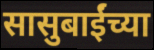
सासुबाईंच्या